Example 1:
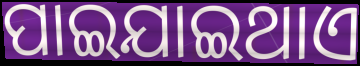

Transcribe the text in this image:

ପାଇଯାଇଥାଏ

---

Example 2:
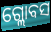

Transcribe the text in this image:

ଗ୍ଲୋବସ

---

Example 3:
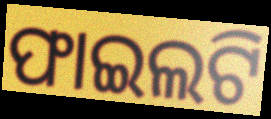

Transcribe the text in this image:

ଫାଇଲଟି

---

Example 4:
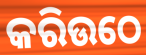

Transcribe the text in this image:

କରିଉଠେ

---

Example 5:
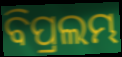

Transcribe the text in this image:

ବିପ୍ରଲମ୍ଭ